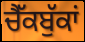
ਚੈੱਕਬੁੱਕਾਂ